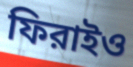
ফিরাইও